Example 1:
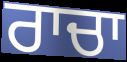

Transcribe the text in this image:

ਰਾਚਾ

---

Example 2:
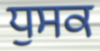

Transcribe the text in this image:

ਧੁਸਕ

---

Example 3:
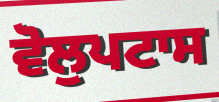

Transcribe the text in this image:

ਵੋਲੁਪਟਾਸ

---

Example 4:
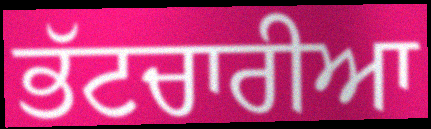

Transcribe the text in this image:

ਭੱਟਚਾਰੀਆ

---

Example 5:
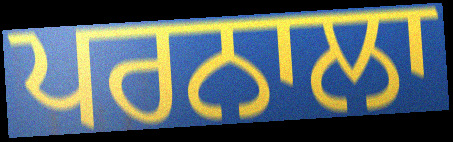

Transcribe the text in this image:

ਪਰਨਾਲਾ